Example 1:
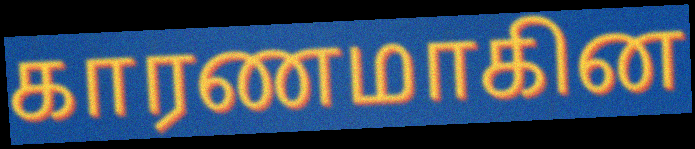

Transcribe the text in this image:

காரணமாகின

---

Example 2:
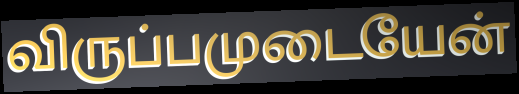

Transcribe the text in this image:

விருப்பமுடையேன்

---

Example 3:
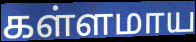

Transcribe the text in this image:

கள்ளமாய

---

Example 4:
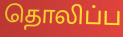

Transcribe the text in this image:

தொலிப்ப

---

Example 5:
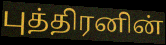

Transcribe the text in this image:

புத்திரனின்